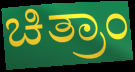
ಚಿತ್ರಾಂ